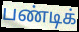
பண்டிக்